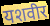
यशवीर